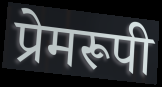
प्रेमरूपी